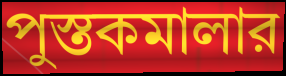
পুস্তকমালার